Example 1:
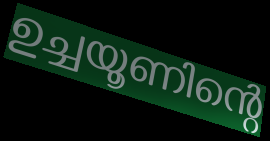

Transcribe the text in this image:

ഉച്ചയൂണിന്റെ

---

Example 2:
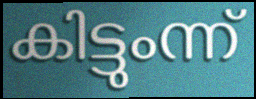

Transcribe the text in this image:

കിട്ടുംന്ന്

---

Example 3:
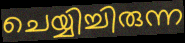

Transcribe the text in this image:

ചെയ്യിച്ചിരുന്ന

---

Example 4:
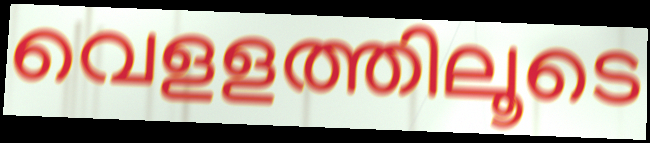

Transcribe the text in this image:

വെളളത്തിലൂടെ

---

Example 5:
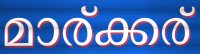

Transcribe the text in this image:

മാര്ക്കര്